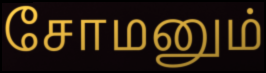
சோமனும்